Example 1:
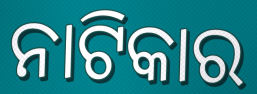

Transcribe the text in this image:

ନାଟିକାର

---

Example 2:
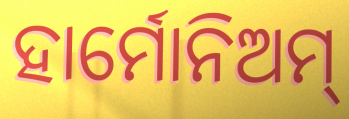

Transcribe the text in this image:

ହାର୍ମୋନିଅମ୍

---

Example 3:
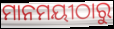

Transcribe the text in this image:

ମାନମୟୀଠାରୁ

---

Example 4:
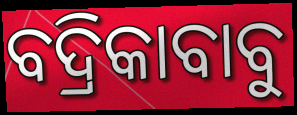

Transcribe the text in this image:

ବଦ୍ରିକାବାବୁ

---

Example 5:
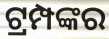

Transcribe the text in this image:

ଟ୍ରମ୍ପଙ୍କର